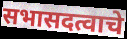
सभासदत्वाचे